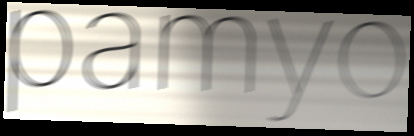
pamyo